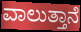
ವಾಲುತ್ತಾನೆ